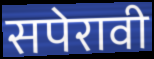
सपेरावी